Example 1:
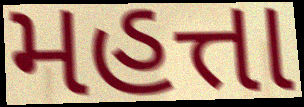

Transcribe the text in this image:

મહત્તા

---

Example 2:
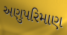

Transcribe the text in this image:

અણુપરિમાણ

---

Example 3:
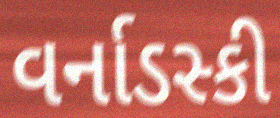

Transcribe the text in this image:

વર્નાડસ્કી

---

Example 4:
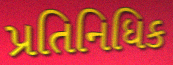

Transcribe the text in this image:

પ્રતિનિધિક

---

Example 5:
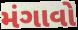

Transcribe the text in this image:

મંગાવો